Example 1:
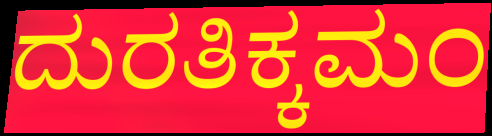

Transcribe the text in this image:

ದುರತಿಕ್ಕಮಂ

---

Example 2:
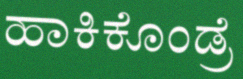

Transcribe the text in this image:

ಹಾಕಿಕೊಂಡ್ರೆ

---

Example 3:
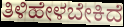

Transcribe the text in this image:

ತಿಳಿಹೇಳಬೇಕಿದೆ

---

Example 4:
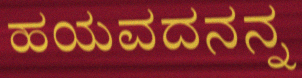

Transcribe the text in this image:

ಹಯವದನನ್ನ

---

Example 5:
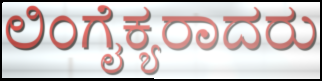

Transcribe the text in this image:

ಲಿಂಗೈಕ್ಯರಾದರು